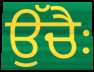
ਉੱਚੈਃ